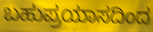
ಬಹುಪ್ರಯಾಸದಿಂದ